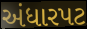
અંધારપટ